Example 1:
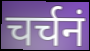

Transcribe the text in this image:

चर्चनं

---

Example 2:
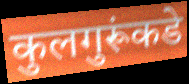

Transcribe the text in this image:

कुलगुरूंकडे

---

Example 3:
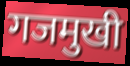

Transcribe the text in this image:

गजमुखी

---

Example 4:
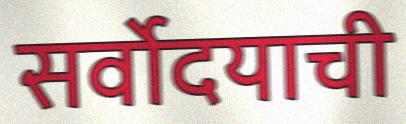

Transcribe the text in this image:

सर्वोदयाची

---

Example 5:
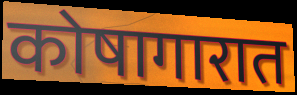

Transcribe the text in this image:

कोषागारात